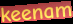
keenam